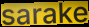
sarake